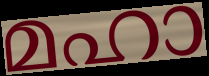
മഹാ